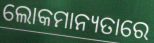
ଲୋକମାନ୍ୟତାରେ